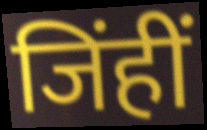
जिंहीं